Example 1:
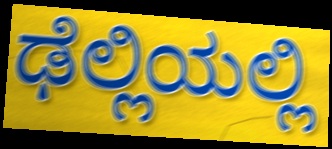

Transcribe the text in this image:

ಢೆಲ್ಲಿಯಲ್ಲಿ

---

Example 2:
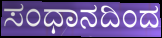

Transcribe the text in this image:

ಸಂಧಾನದಿಂದ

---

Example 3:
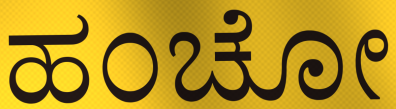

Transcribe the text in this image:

ಹಂಚೋ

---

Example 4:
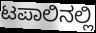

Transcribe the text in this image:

ಟಪಾಲಿನಲ್ಲಿ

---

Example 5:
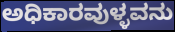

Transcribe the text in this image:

ಅಧಿಕಾರವುಳ್ಳವನು